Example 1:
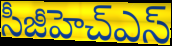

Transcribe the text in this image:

సీజీహెచ్ఎస్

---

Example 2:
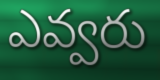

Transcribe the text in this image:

ఎవ్వరు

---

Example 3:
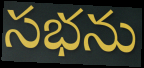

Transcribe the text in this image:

సభను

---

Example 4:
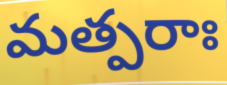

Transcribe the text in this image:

మత్పరాః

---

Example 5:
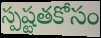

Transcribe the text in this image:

స్పష్టతకోసం